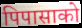
पिपासाको